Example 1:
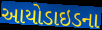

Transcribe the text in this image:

આયોડાઇડના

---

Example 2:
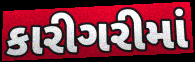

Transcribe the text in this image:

કારીગરીમાં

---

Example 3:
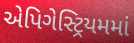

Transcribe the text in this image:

એપિગેસ્ટ્રિયમમાં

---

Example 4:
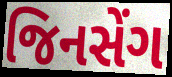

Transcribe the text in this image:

જિનસેંગ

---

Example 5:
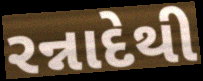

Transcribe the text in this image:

રન્નાદેથી